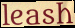
leash